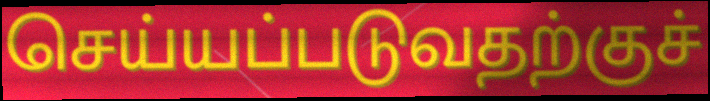
செய்யப்படுவதற்குச்